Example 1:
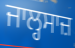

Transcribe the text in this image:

ਜਾਲ੍ਹਸਾਜ਼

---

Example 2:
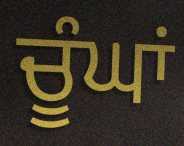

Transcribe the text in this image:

ਚੂੰਘਾਂ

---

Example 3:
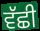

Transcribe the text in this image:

ਵੱਛੀ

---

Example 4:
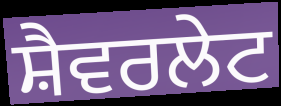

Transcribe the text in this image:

ਸ਼ੈਵਰਲੇਟ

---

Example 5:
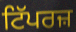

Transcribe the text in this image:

ਟਿੱਪਰਜ਼